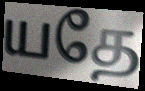
யதே